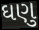
ઘણુ